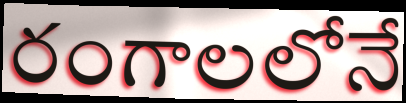
రంగాలలోనే